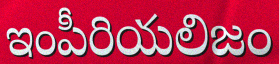
ఇంపీరియలిజం